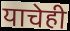
याचेही